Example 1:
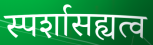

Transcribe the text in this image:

स्पर्शासह्यत्व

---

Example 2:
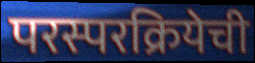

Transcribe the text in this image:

परस्परक्रियेची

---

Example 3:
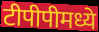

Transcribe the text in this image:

टीपीपीमध्ये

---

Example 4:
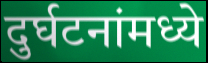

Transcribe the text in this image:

दुर्घटनांमध्ये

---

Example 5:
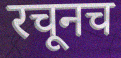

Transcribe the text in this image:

रचूनच